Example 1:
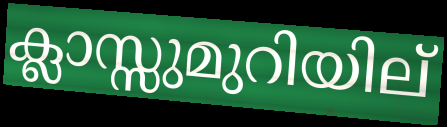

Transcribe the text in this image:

ക്ലാസ്സുമുറിയില്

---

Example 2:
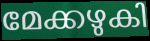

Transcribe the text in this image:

മേക്കഴുകി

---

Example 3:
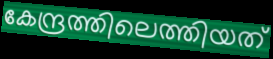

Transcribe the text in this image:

കേന്ദ്രത്തിലെത്തിയത്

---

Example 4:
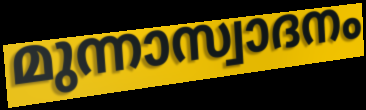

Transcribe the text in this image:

മുന്നാസ്വാദനം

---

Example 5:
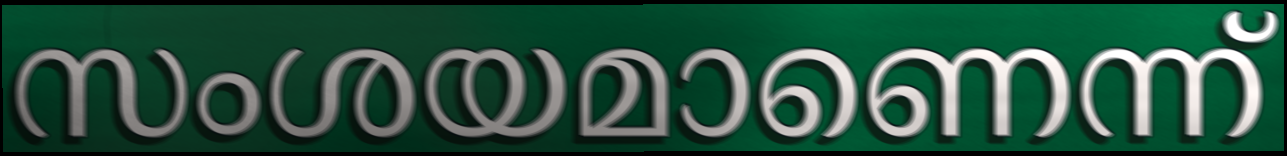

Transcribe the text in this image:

സംശയമാണെന്ന്